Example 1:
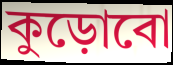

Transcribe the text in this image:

কুড়োবো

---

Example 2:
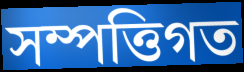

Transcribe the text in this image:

সম্পত্তিগত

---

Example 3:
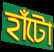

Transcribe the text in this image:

হাঁটো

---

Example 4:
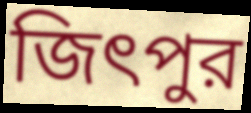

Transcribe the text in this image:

জিৎপুর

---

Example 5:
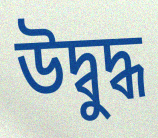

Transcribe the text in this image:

উদ্বুদ্ধ